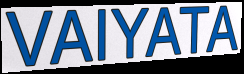
VAIYATA